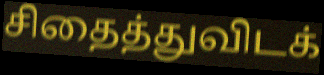
சிதைத்துவிடக்